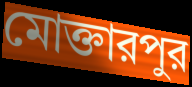
মোক্তারপুর